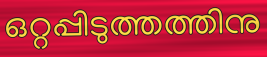
ഒറ്റപ്പിടുത്തത്തിനു